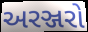
અરઞ્જરો